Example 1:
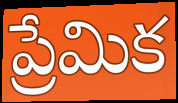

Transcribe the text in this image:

ప్రేమిక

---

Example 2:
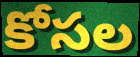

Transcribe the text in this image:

కోసల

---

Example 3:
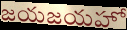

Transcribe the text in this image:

జయజయహో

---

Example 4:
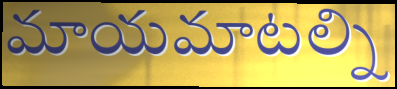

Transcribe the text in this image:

మాయమాటల్ని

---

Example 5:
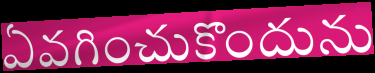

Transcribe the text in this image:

ఏవగించుకొందును